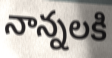
నాన్నలకి